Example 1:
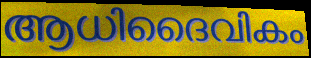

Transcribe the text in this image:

ആധിദൈവികം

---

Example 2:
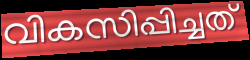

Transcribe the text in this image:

വികസിപ്പിച്ചത്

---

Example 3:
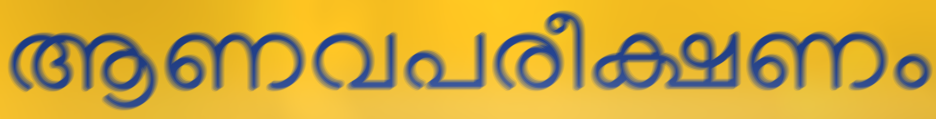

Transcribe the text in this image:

ആണവപരീക്ഷണം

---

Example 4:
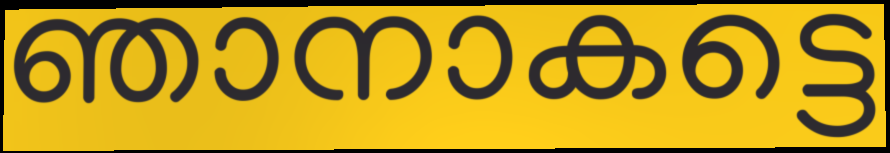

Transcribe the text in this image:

ഞാനാകട്ടെ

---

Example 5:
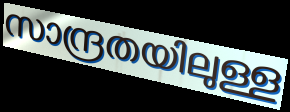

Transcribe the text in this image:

സാന്ദ്രതയിലുള്ള